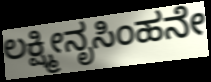
ಲಕ್ಷ್ಮೀನೃಸಿಂಹನೇ